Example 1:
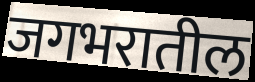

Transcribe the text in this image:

जगभरातील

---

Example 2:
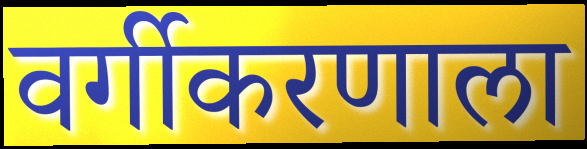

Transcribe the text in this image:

वर्गीकरणाला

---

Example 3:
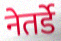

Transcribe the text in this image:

नेतर्डे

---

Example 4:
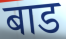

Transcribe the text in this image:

बाड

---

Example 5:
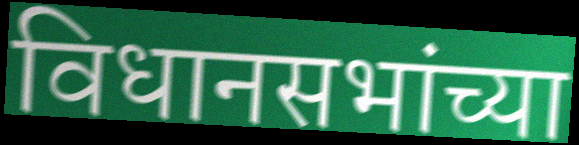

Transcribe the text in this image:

विधानसभांच्या